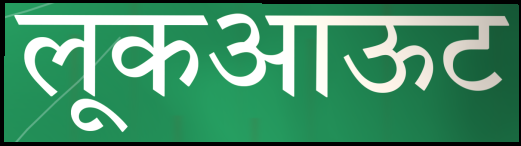
लूकआऊट